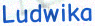
Ludwika